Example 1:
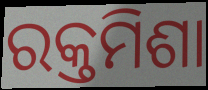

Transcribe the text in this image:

ରକ୍ତମିଶା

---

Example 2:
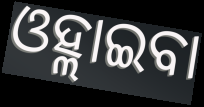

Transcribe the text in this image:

ଓହ୍ଲାଇବା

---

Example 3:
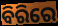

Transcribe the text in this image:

ବିରିରେ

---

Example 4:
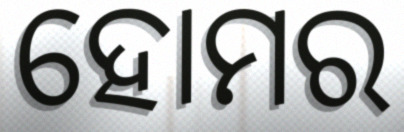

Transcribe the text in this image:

ହୋମର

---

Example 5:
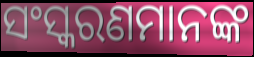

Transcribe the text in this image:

ସଂସ୍କରଣମାନଙ୍କ